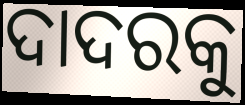
ଦାଦରକୁ